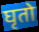
घृतो